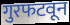
गुरफटवून